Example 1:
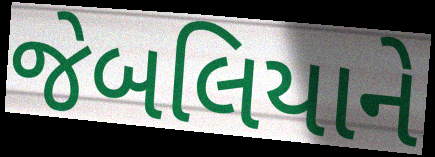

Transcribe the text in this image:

જેબલિયાને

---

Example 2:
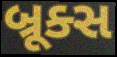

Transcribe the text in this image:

બ્રૂક્સ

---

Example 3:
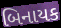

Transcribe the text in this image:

બિનાયક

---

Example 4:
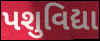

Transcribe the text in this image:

પશુવિદ્યા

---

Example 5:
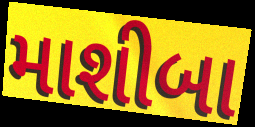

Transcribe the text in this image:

માશીબા